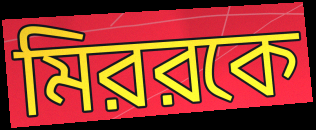
মিররকে